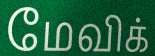
மேவிக்